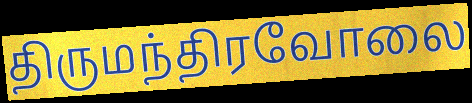
திருமந்திரவோலை